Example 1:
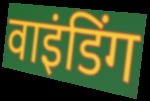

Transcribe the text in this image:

वाइंडिंग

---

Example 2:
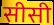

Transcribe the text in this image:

सीसी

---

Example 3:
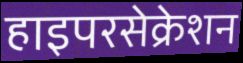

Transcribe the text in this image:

हाइपरसेक्रेशन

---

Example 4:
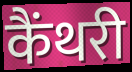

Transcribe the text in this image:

कैंथरी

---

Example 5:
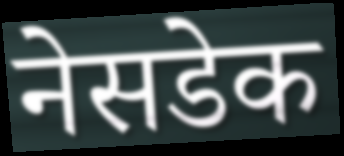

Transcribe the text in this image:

नेसडेक